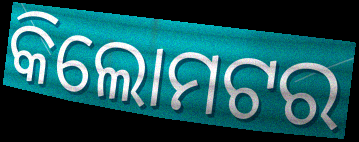
କିଲୋମଟର